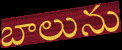
బాలును